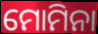
ମୋମିନା